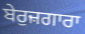
ਬੇਰੁਜ਼ਗਾਰਾ